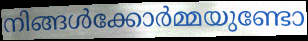
നിങ്ങൾക്കോർമ്മയുണ്ടോ